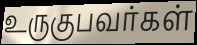
உருகுபவர்கள்